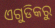
ଏଗୁଡିକରୁ